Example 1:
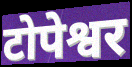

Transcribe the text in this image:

टोपेश्वर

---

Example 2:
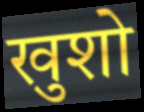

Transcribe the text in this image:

खुशो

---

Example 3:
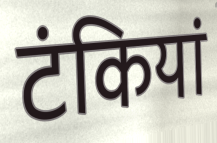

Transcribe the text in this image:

टंकियां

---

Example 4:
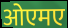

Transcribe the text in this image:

ओएमए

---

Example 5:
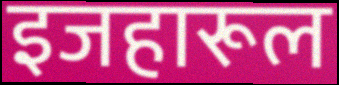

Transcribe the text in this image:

इजहारूल